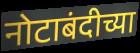
नोटाबंदीच्या